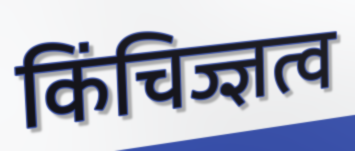
किंचिज्ज्ञत्व